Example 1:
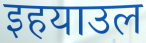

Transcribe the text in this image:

इहयाउल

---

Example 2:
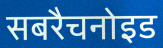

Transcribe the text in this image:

सबरैचनोइड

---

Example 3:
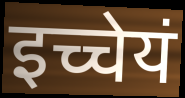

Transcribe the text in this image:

इच्चेयं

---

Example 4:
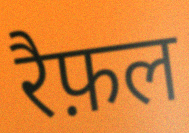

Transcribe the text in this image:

रैफ़ल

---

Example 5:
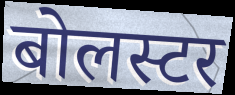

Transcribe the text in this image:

बोलस्टर